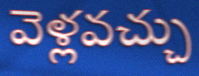
వెళ్లవచ్చు